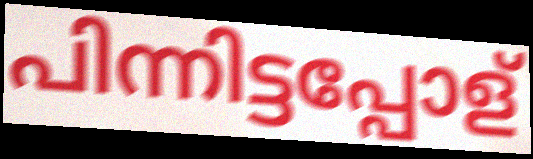
പിന്നിട്ടപ്പോള്